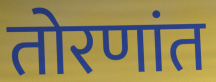
तोरणांत